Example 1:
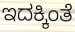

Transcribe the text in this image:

ಇದಕ್ಕಿಂತೆ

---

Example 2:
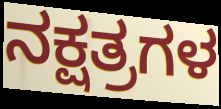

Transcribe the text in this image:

ನಕ್ಷತ್ರಗಳ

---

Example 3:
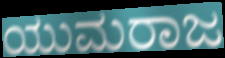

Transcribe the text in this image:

ಯುಮರಾಜ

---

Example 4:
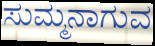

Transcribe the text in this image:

ಸುಮ್ಮನಾಗುವ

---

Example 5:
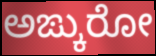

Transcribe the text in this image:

ಅಙ್ಕುರೋ